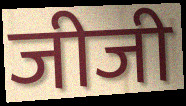
जीजी